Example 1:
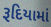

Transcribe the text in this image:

રૂદિયામાં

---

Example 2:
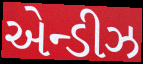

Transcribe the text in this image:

એન્ડીઝ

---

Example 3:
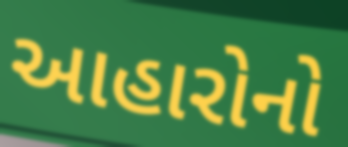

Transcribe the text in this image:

આહારોનો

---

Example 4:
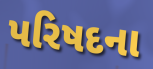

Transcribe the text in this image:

પરિષદના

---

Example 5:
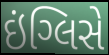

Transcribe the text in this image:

ઇંગ્લિસે